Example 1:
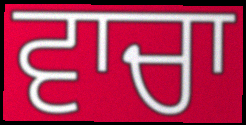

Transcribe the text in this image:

ਵਾਚਾ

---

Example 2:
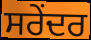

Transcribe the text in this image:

ਸਰੇਂਦਰ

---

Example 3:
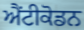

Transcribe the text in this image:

ਐਂਟੀਕੋਡਨ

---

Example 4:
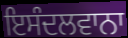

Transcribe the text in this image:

ਇਸੰਦਲਵਾਨਾ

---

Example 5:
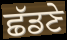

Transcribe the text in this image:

ਛੱਡਣੇ